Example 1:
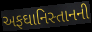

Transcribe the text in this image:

અફઘાનિસ્તાનની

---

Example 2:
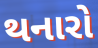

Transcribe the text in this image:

થનારો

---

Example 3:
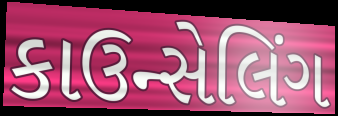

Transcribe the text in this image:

કાઉન્સેલિંગ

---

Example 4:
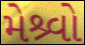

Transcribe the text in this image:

મેશ્ર્વો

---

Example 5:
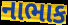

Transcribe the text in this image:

નાભાક